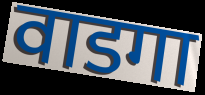
वाडगा